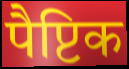
पैप्टिक